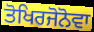
ਤੋਖਿਰਜੋਨੋਵਾ